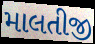
માલતીજી